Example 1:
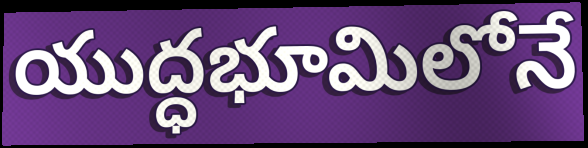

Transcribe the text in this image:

యుద్ధభూమిలోనే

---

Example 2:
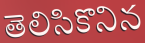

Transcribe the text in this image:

తెలిసికొనిన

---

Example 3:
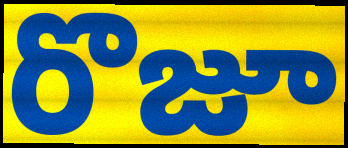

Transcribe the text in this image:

రొజూ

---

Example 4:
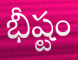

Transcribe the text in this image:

భీష్టం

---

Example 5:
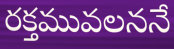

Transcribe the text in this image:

రక్తమువలననే